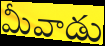
మీవాడు